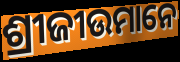
ଶ୍ରୀଜୀଉମାନେ